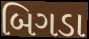
બિગડા